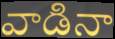
వాడినా